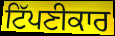
ਟਿੱਪਣੀਕਾਰ